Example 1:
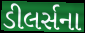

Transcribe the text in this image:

ડીલર્સના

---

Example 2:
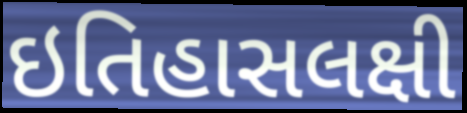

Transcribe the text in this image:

ઇતિહાસલક્ષી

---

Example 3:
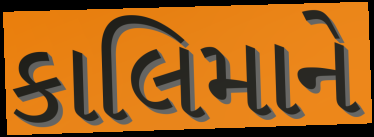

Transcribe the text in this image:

કાલિમાને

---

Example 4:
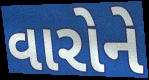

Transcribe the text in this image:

વારોને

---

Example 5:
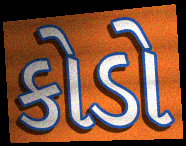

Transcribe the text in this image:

કોડો